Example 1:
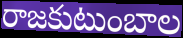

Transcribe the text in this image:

రాజకుటుంబాల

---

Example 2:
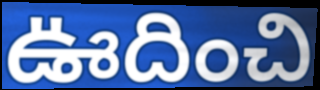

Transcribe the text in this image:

ఊదించి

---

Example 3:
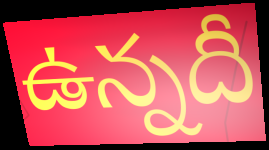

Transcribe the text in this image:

ఉన్నదీ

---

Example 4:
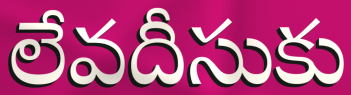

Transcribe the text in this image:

లేవదీసుకు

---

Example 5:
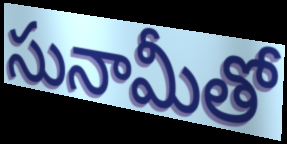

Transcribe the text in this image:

సునామీతో